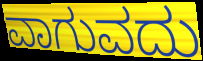
ವಾಗುವದು